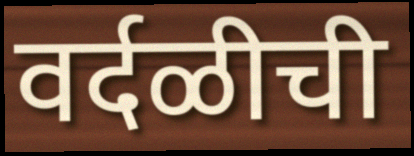
वर्दळीची